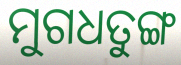
ମୁଗଧତୁଙ୍ଗ